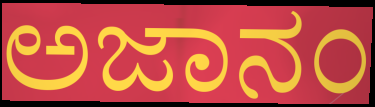
ಅಜಾನಂ